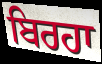
ਬਿਰਹਾ